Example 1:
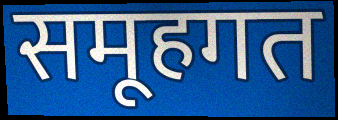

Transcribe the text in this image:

समूहगत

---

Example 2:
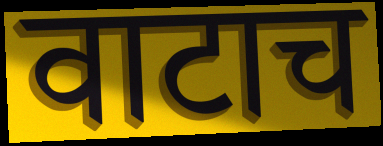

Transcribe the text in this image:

वाटाच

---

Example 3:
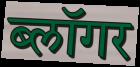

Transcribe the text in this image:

ब्लॉगर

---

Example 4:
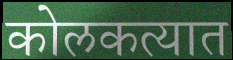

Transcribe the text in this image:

कोलकत्यात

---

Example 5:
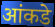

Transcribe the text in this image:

आंकडे